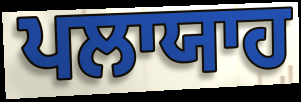
ਪਲਾਯਾਹ